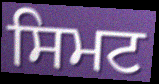
ਸਿਮਟ